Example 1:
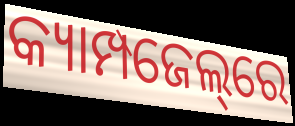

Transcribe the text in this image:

କ୍ୟାମ୍ପଜେଲ୍‌ରେ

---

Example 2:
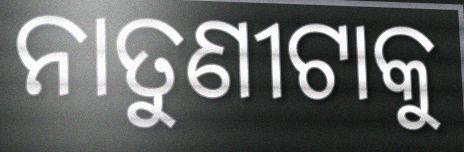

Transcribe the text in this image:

ନାତୁଣୀଟାକୁ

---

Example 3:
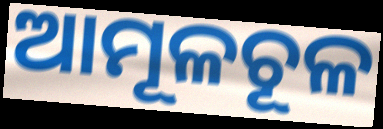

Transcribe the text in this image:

ଆମୂଳଚୂଳ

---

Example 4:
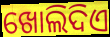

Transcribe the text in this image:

ଖୋଲିଦିଏ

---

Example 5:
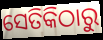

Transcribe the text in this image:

ସେତିକିଠାରୁ